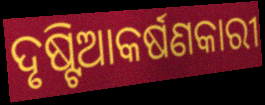
ଦୃଷ୍ଟିଆକର୍ଷଣକାରୀ